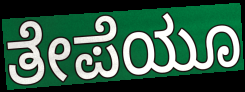
ತೇಪೆಯೂ